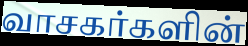
வாசகர்களின்